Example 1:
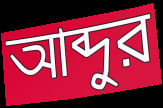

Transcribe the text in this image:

আব্দুর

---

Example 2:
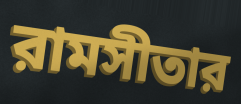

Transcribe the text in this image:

রামসীতার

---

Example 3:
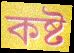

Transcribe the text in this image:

কষ্ট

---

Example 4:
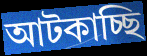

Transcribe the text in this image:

আটকাচ্ছি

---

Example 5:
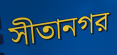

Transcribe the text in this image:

সীতানগর